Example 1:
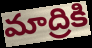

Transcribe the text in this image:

మాద్రికి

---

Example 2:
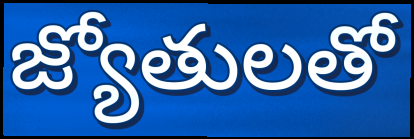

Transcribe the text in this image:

జ్యోతులతో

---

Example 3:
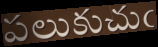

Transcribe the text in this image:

పలుకుచుఁ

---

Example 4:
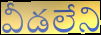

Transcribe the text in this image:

వీడలేని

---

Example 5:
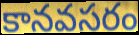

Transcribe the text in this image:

కానవసరం